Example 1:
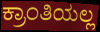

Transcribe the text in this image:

ಕ್ರಾಂತಿಯಲ್ಲ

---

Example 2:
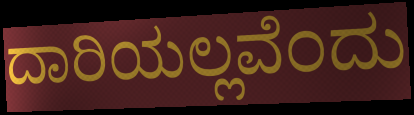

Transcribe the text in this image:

ದಾರಿಯಲ್ಲವೆಂದು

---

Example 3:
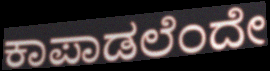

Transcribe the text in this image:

ಕಾಪಾಡಲೆಂದೇ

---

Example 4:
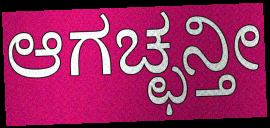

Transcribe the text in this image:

ಆಗಚ್ಛನ್ತೀ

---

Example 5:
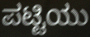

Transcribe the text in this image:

ಪಟ್ಟಿಯು